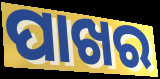
ପାଖର